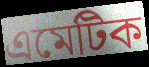
এমেটিক